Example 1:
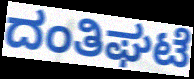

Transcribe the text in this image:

ದಂತಿಘಟೆ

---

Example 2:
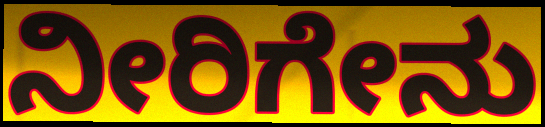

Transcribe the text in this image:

ನೀರಿಗೇನು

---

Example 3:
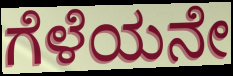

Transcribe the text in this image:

ಗೆಳೆಯನೇ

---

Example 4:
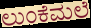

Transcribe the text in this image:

ಲುಂಕೆಮಲೆ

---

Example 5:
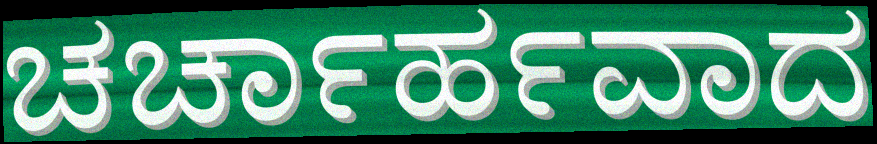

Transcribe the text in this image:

ಚರ್ಚಾರ್ಹವಾದ